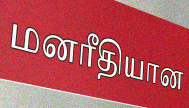
மனரீதியான